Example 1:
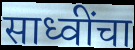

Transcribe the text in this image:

साध्वींचा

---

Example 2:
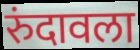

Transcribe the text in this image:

रुंदावला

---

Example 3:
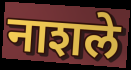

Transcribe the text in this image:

नाशले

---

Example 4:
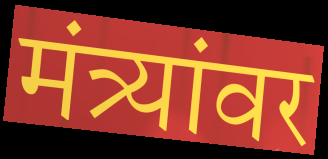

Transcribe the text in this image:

मंत्र्यांवर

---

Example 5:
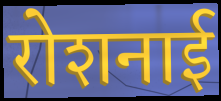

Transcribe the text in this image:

रोशनाई